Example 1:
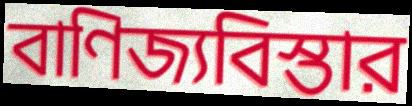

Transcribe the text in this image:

বাণিজ্যবিস্তার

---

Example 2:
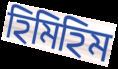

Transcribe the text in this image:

হিমিহিম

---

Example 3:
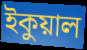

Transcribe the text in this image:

ইকুয়াল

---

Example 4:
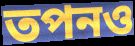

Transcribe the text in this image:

তপনও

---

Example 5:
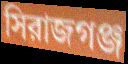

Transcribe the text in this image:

সিরাজগঞ্জ